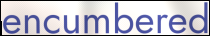
encumbered